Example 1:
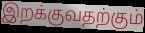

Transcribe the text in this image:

இறக்குவதற்கும்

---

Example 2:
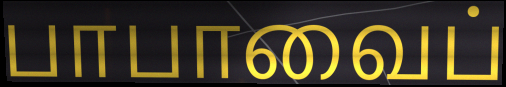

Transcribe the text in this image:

பாபாவைப்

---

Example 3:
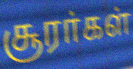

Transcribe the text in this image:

சூரர்கள்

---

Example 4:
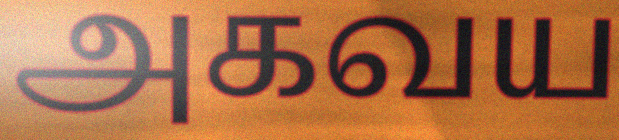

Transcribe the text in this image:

அகவய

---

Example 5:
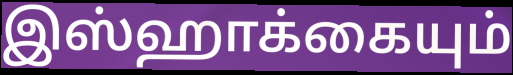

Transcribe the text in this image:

இஸ்ஹாக்கையும்